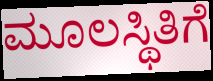
ಮೂಲಸ್ಥಿತಿಗೆ